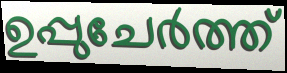
ഉപ്പുചേർത്ത്